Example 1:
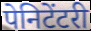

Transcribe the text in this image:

पेनिटेंटरी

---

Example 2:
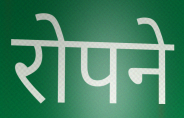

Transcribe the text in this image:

रोपने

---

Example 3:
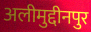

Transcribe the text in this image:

अलीमुद्दीनपुर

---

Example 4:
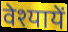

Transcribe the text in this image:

वेश्यायें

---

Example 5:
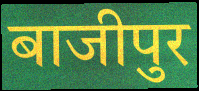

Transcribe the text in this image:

बाजीपुर